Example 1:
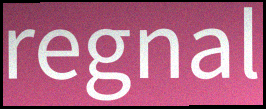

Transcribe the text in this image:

regnal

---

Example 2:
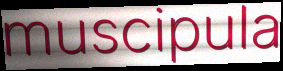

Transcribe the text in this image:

muscipula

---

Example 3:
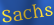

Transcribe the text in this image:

Sachs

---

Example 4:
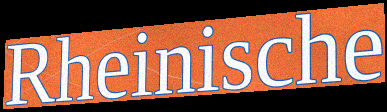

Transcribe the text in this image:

Rheinische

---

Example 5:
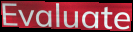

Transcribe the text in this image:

Evaluate